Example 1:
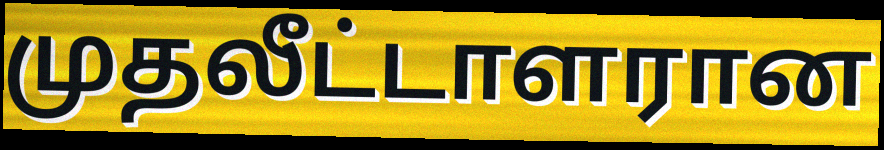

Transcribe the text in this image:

முதலீட்டாளரான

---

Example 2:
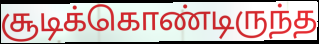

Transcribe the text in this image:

சூடிக்கொண்டிருந்த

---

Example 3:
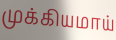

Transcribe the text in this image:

முக்கியமாய்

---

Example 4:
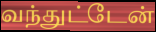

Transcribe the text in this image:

வந்துட்டேன்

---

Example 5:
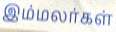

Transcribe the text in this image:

இம்மலர்கள்